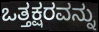
ಒತ್ತಕ್ಷರವನ್ನು